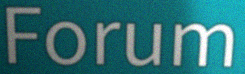
Forum